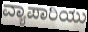
ವ್ಯಾಪಾರಿಯು